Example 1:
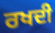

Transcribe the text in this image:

ਰਖਦੀ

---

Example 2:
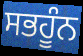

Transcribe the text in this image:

ਸਭਹੂੰਨ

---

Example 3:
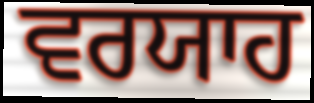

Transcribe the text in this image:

ਵਰਯਾਹ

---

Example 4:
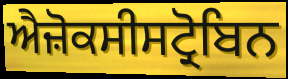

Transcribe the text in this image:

ਐਜ਼ੋਕਸੀਸਟ੍ਰੋਬਿਨ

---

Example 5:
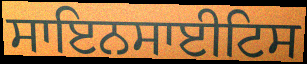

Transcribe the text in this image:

ਸਾਇਨਸਾਈਟਿਸ